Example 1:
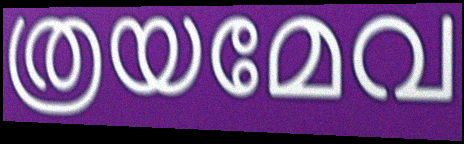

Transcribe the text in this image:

ത്രയമേവ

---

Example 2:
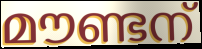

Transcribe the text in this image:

മൗണ്ടന്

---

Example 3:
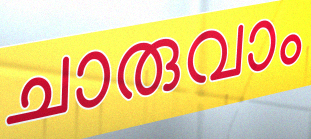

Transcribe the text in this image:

ചാരുവാം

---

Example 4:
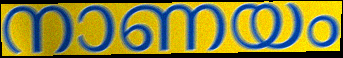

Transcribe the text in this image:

നാണയം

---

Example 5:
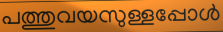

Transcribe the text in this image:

പത്തുവയസുള്ളപ്പോൾ